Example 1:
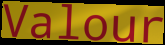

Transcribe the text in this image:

Valour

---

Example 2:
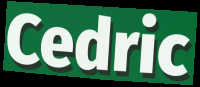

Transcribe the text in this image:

Cedric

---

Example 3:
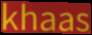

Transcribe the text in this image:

khaas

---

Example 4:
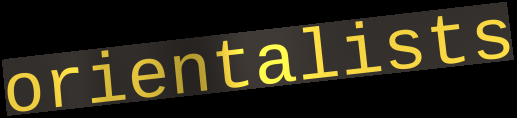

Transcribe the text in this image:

orientalists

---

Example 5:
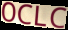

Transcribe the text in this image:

OCLC